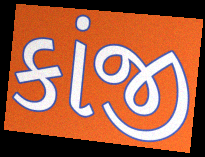
કાંજી